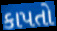
કાપતો